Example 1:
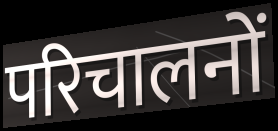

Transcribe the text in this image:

परिचालनों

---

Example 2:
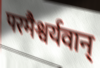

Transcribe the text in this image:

परमैश्वर्यवान्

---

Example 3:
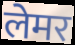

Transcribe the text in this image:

लेमर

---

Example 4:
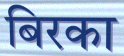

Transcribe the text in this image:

बिरका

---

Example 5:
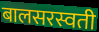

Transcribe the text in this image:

बालसरस्वती